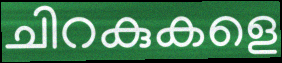
ചിറകുകളെ